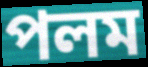
পলম